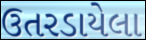
ઉતરડાયેલા